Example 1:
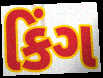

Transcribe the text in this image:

કિંગ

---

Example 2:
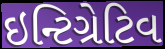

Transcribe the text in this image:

ઇન્ટિગ્રેટિવ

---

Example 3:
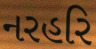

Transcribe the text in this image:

નરહરિ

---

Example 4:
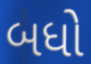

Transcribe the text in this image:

બધો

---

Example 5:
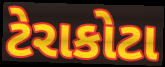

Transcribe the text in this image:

ટેરાકોટા